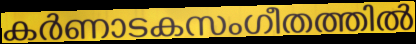
കർണാടകസംഗീതത്തിൽ